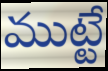
ముట్టే